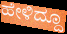
ಹೇಳಿದ್ದೂ